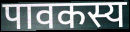
पावकस्य